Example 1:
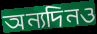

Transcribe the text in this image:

অন্যদিনও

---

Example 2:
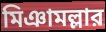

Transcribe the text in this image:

মিঞামল্লার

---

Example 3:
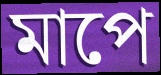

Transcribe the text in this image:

মাপে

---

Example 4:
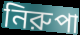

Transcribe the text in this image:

নিরুপা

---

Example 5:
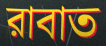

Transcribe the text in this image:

রাবাত